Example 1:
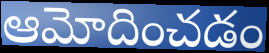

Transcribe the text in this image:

ఆమోదించడం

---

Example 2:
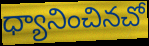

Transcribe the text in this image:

ధ్యానించినచో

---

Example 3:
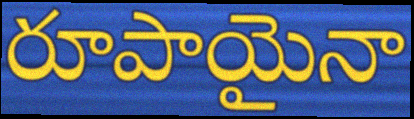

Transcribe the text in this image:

రూపాయైనా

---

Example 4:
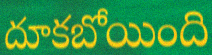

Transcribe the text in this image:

దూకబోయింది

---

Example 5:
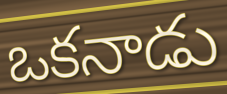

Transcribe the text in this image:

ఒకనాడు